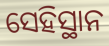
ସେହିସ୍ଥାନ